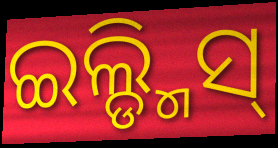
ଇଲ୍ଡ୍ମିସ୍